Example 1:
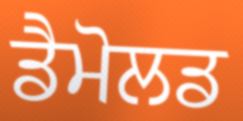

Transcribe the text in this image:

ਡੈਮੋਲਡ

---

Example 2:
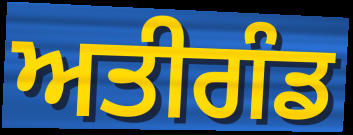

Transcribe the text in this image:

ਅਤੀਗੰਡ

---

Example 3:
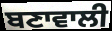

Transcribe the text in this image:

ਬਣਾਵਾਲੀ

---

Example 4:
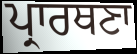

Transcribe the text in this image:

ਪ੍ਰਾਰਥਣਾ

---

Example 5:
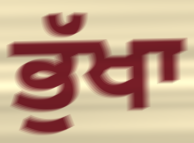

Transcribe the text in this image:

ਭੁੱਖਾ